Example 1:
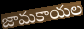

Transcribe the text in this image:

జామకాయల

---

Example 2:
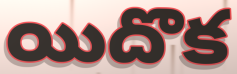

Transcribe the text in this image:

యిదొక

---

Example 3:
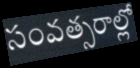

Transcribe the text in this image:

సంవత్సరాల్లో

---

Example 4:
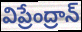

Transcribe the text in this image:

విప్రేంద్రాన్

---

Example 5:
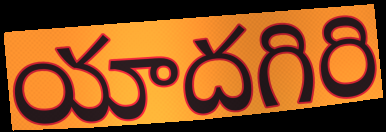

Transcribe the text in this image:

యాదగిరి